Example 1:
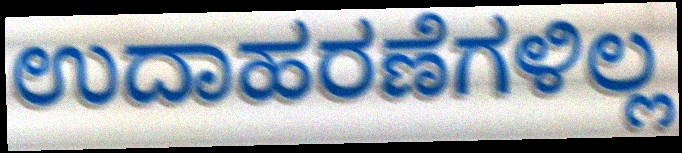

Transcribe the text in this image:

ಉದಾಹರಣೆಗಳಿಲ್ಲ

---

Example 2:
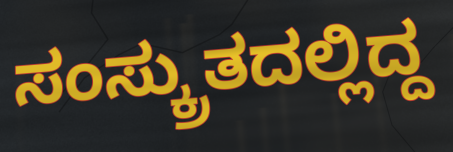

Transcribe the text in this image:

ಸಂಸ್ಕ್ರುತದಲ್ಲಿದ್ದ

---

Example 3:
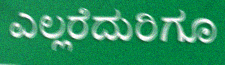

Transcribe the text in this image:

ಎಲ್ಲರೆದುರಿಗೂ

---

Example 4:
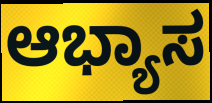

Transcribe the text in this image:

ಆಭ್ಯಾಸ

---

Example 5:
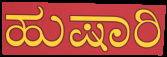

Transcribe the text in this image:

ಹುಷಾರಿ